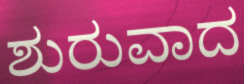
ಶುರುವಾದ